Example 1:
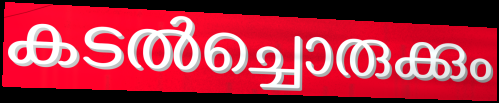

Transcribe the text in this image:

കടൽച്ചൊരുക്കും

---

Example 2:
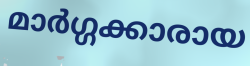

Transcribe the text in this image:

മാർഗ്ഗക്കാരായ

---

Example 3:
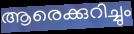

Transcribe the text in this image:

ആരെക്കുറിച്ചും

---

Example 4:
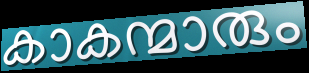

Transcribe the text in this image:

കാകന്മാരും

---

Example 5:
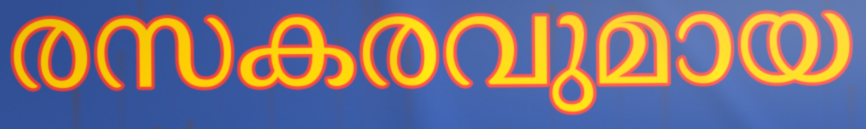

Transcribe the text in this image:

രസകരവുമായ